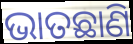
ଭାତଛାଣି